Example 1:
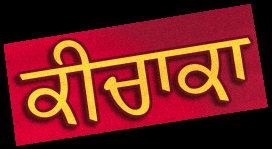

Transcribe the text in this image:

ਕੀਚਾਕਾ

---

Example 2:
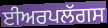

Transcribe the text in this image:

ਈਅਰਪਲੱਗਸ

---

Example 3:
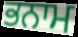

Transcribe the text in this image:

ਭਨਾਮ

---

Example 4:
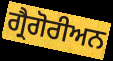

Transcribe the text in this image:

ਗ੍ਰੈਗੋਰੀਅਨ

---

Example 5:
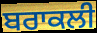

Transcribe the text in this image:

ਬਰਾਕਲੀ